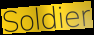
Soldier